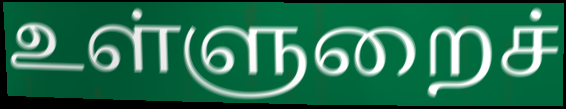
உள்ளுறைச்